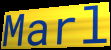
Marl